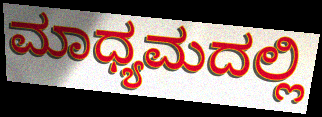
ಮಾಧ್ಯಮದಲ್ಲಿ